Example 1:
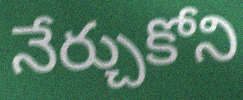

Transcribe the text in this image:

నేర్చుకోని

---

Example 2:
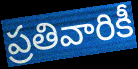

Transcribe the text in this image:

ప్రతివారికీ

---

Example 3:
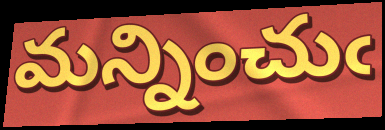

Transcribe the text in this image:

మన్నించుఁ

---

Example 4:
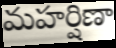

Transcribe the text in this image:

మహర్షిణా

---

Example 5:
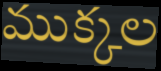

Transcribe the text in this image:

ముక్కల